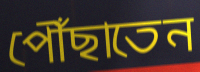
পৌঁছাতেন